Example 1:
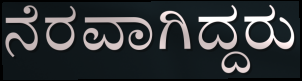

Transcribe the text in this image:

ನೆರವಾಗಿದ್ದರು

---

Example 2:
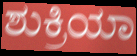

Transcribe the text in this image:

ಶುಕ್ರಿಯಾ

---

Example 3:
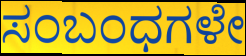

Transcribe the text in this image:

ಸಂಬಂಧಗಳೇ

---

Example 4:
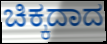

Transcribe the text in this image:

ಚಿಕ್ಕದಾದ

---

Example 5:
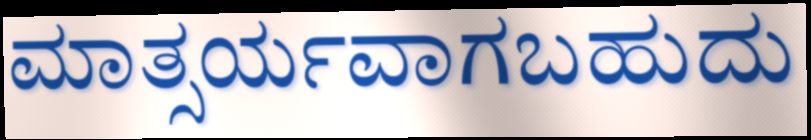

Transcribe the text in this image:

ಮಾತ್ಸರ್ಯವಾಗಬಹುದು